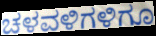
ಚಳವಳಿಗಳಿಗೂ